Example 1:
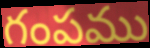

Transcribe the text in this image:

గంపము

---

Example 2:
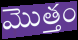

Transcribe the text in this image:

మొత్తం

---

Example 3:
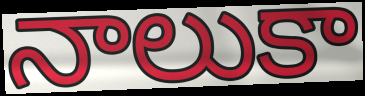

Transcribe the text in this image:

నాలుకా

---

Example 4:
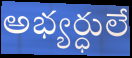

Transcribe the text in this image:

అభ్యర్ధులే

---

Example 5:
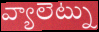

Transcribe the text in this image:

వ్యాలెట్ను